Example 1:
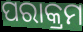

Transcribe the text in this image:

ପରାକ୍ରମ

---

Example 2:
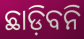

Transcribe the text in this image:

ଛାଡ଼ିବନି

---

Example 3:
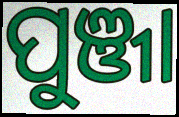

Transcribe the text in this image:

ପୁଞ୍ଜା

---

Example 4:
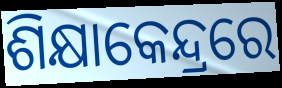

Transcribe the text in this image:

ଶିକ୍ଷାକେନ୍ଦ୍ରରେ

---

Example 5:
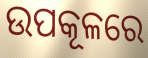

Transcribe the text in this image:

ଉପକୂଳରେ